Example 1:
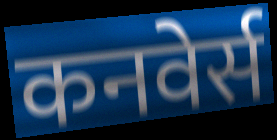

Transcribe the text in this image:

कनवेर्स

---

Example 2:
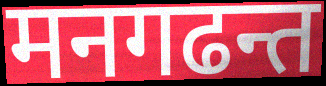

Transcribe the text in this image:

मनगढन्त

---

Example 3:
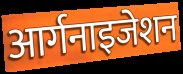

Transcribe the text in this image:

आर्गनाइजेशन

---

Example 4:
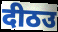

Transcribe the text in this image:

दीठउ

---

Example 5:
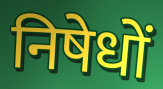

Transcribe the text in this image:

निषेधों